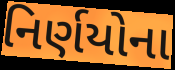
નિર્ણયોના